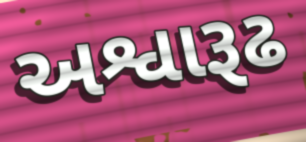
અશ્વારૂઢ